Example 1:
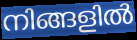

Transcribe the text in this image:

നിങ്ങളിൽ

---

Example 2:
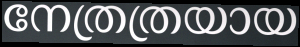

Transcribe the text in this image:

നേത്രത്രയായ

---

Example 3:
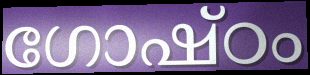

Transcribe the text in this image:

ഗോഷ്ഠം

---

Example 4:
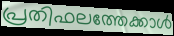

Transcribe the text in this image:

പ്രതിഫലത്തേക്കാൾ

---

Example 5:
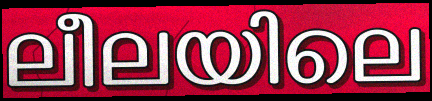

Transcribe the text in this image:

ലീലയിലെ